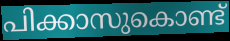
പിക്കാസുകൊണ്ട്